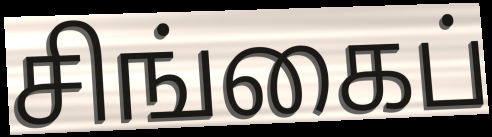
சிங்கைப்